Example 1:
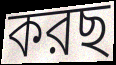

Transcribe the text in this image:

করছ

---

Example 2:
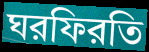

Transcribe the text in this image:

ঘরফিরতি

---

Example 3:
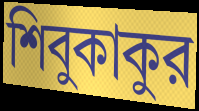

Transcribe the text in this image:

শিবুকাকুর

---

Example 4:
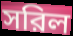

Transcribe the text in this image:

সরিল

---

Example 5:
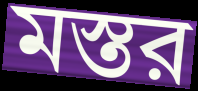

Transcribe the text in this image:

মস্তর